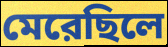
মেরেছিলে